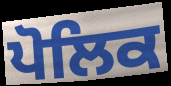
ਪੋਲਿਕ